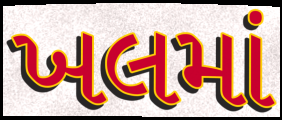
ખલમાં